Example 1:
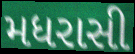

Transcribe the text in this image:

મધરાસી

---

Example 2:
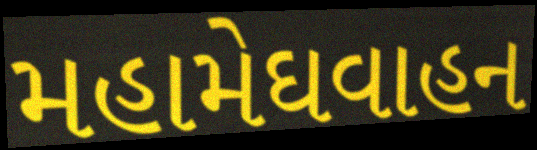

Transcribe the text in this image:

મહામેઘવાહન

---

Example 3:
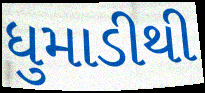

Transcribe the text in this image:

ધુમાડીથી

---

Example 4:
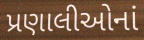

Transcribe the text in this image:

પ્રણાલીઓનાં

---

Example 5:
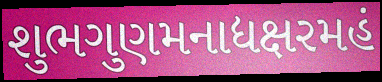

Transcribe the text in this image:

શુભગુણમનાદ્યક્ષરમહં